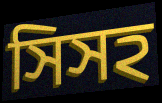
সিসহ